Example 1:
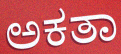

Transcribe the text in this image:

ಅಕತಾ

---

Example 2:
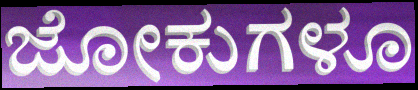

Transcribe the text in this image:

ಜೋಕುಗಳೂ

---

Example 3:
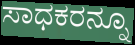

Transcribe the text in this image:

ಸಾಧಕರನ್ನೂ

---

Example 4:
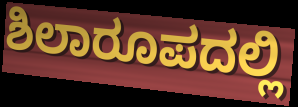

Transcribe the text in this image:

ಶಿಲಾರೂಪದಲ್ಲಿ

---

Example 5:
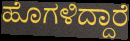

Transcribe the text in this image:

ಹೊಗಳಿದ್ದಾರೆ